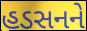
હડસનને